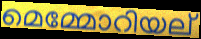
മെമ്മോറിയല്